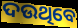
ଦଉଥିବେ